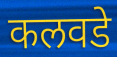
कलवडे